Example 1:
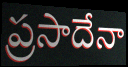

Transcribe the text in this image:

ప్రసాదేనా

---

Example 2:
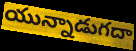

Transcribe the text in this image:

యున్నాడుగదా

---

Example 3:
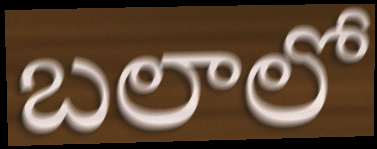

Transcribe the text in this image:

బలాలో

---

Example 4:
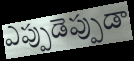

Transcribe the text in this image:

ఎప్పుడెప్పుడా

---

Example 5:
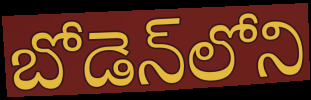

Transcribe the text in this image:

బోడెన్‌లోని